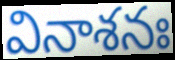
వినాశనః